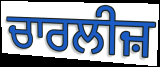
ਚਾਰਲੀਜ਼